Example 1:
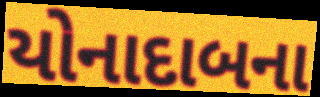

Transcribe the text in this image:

યોનાદાબના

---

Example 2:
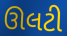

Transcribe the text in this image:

ઊલટી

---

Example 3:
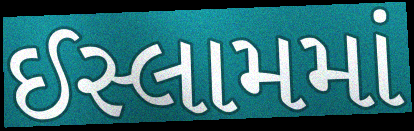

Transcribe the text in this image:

ઈસ્લામમાં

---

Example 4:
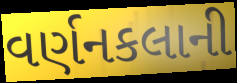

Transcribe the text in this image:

વર્ણનકલાની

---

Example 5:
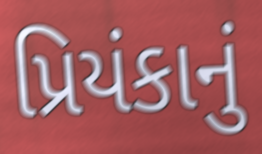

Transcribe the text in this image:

પ્રિયંકાનું